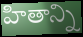
హితాన్ని